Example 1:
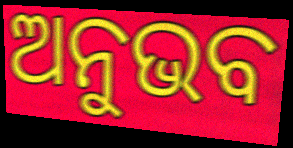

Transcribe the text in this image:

ଅନୁଭବ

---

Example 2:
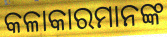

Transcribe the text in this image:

କଳାକାରମାନଙ୍କ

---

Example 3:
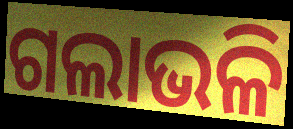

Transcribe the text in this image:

ଗଲାଭଳି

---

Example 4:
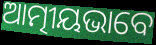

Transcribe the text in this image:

ଆତ୍ମୀୟଭାବେ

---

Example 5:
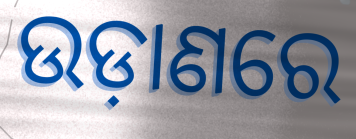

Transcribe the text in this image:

ଉଡ଼ାଣରେ